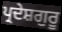
ਪ੍ਰਦੇਸ਼ਗੁਰੂ